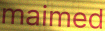
maimed